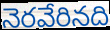
నెరవేరినది